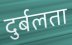
दुर्बलता